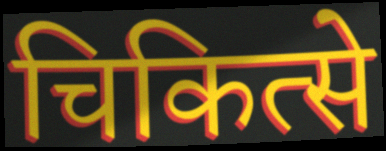
चिकित्से